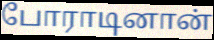
போராடினான்